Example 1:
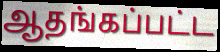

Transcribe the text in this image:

ஆதங்கப்பட்ட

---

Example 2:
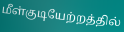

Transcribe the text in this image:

மீள்குடியேற்றத்தில்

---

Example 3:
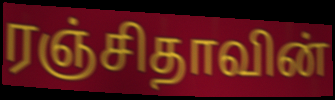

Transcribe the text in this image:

ரஞ்சிதாவின்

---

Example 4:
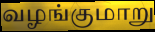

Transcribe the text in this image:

வழங்குமாறு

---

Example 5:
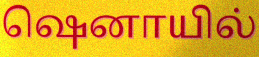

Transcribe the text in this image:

ஷெனாயில்